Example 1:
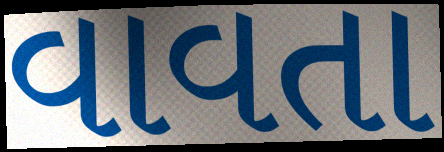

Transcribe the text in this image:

વાવતા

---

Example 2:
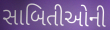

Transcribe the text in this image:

સાબિતીઓની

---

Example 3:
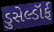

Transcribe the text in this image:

ડુસેલ્ડૉર્ફ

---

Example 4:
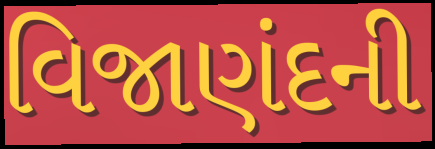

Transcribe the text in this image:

વિજાણંદની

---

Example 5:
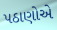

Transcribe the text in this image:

પઠાણોએ